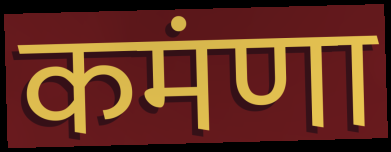
कमंणा